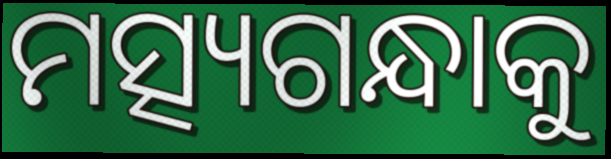
ମତ୍ସ୍ୟଗନ୍ଧାକୁ